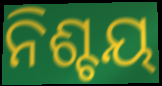
ନିଶ୍ଚୟ